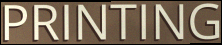
PRINTING